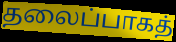
தலைப்பாகத்